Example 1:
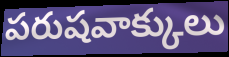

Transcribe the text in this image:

పరుషవాక్కులు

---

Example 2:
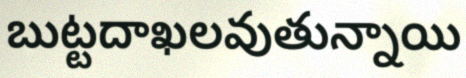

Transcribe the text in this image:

బుట్టదాఖలవుతున్నాయి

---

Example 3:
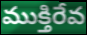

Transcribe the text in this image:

ముక్తిరేవ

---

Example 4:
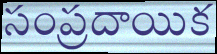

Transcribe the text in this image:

సంప్రదాయిక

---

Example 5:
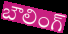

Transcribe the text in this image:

బౌలింగ్